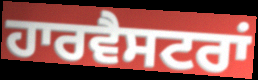
ਹਾਰਵੈਸਟਰਾਂ